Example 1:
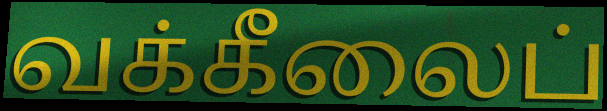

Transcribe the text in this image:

வக்கீலைப்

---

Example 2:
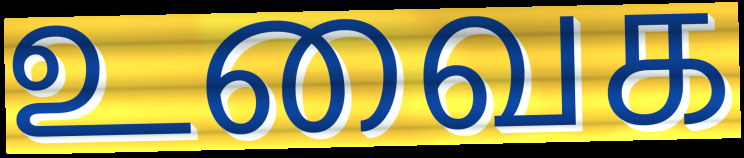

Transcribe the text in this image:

உவைக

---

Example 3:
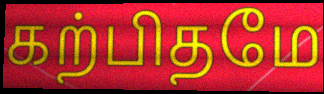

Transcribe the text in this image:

கற்பிதமே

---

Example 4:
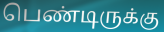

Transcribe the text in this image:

பெண்டிருக்கு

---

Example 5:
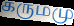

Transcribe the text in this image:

கருமமு